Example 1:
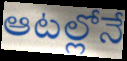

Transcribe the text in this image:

ఆటల్లోనే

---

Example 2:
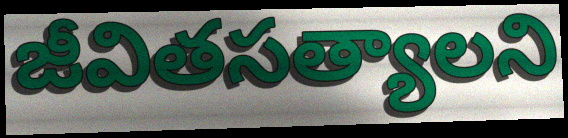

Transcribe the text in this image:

జీవితసత్యాలని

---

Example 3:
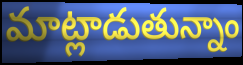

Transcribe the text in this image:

మాట్లాడుతున్నాం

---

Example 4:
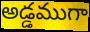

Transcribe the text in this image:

అడ్డముగా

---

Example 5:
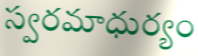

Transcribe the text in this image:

స్వరమాధుర్యం